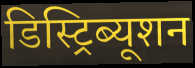
डिस्ट्रिब्यूशन